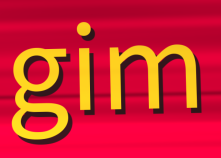
gim